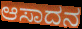
ಆಸಾದನ